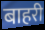
बाहरी